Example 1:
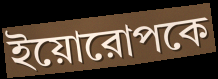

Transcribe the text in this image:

ইয়োরোপকে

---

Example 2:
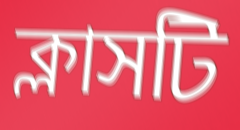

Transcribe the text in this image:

ক্লাসটি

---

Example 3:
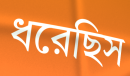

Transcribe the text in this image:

ধরেছিস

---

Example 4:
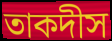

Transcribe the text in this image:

তাকদীস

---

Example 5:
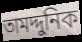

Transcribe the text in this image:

তামদ্দুনিক